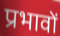
प्रभावों